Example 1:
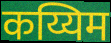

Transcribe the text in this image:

कय्यिम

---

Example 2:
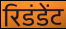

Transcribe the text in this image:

रिडंडेंट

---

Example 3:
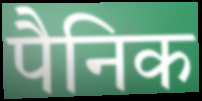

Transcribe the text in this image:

पैनिक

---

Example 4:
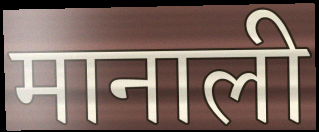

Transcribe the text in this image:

मानाली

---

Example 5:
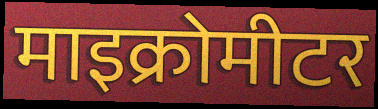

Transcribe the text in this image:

माइक्रोमीटर